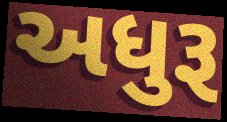
અધુરૂ